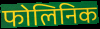
फोलिनिक